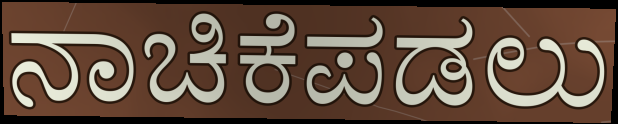
ನಾಚಿಕೆಪಡಲು